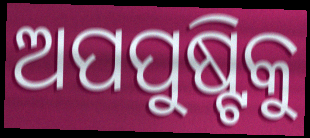
ଅପପୁଷ୍ଟିକୁ